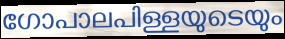
ഗോപാലപിള്ളയുടെയും